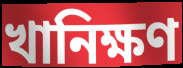
খানিক্ষণ